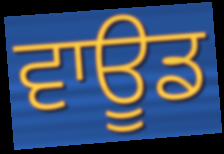
ਵਾਊਡ